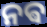
ନଵ